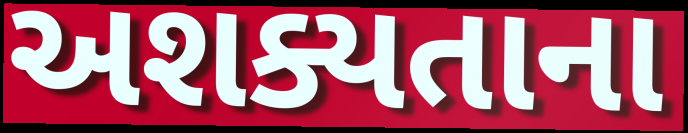
અશક્યતાના